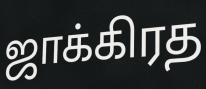
ஜாக்கிரத